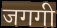
जगगी